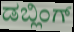
ಡಬ್ಲಿಂಗ್